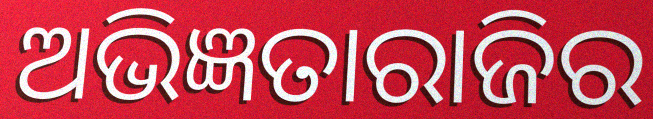
ଅଭିଜ୍ଞତାରାଜିର